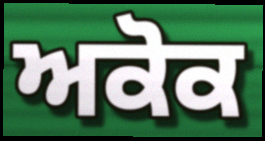
ਅਕੋਕ